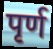
पृर्ण